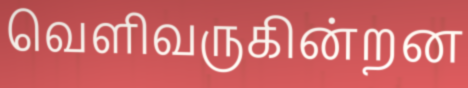
வெளிவருகின்றன